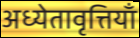
अध्येतावृत्तियाँ